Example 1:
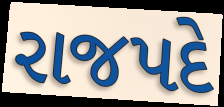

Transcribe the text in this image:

રાજપદે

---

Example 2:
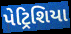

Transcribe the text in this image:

પેટ્રિશિયા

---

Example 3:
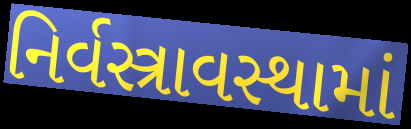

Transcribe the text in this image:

નિર્વસ્ત્રાવસ્થામાં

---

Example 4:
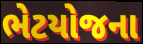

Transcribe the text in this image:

ભેટયોજના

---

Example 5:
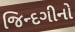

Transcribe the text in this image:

જિન્દગીનો